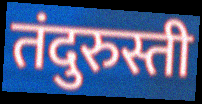
तंदुरुस्ती